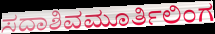
ಸದಾಶಿವಮೂರ್ತಿಲಿಂಗ